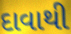
દાવાથી